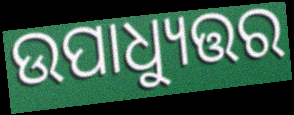
ଉପାଧ୍ୟୁତ୍ତର